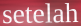
setelah